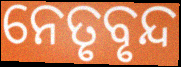
ନେତୃବୃନ୍ଦ